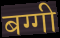
बग्गी